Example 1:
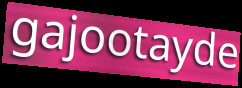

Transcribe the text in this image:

gajootayde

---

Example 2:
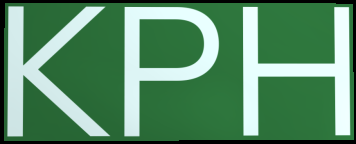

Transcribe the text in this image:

KPH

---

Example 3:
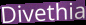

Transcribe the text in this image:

Divethia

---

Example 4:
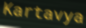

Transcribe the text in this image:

Kartavya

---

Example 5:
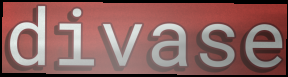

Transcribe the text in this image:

divase